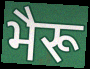
भैरू